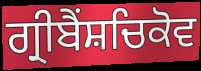
ਗ੍ਰੀਬੈਂਸ਼ਚਿਕੋਵ